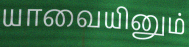
யாவையினும்